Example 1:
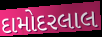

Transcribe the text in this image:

દામોદરલાલ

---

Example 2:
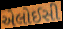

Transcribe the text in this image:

એલોઈસી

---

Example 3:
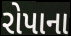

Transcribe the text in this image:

રોપાના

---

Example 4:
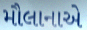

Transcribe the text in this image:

મૌલાનાએ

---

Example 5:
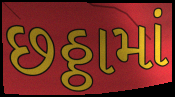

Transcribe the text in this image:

છઠ્ઠામાં